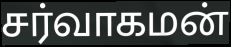
சர்வாகமன்